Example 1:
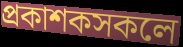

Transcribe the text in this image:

প্ৰকাশকসকলে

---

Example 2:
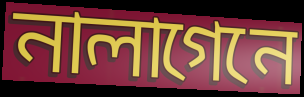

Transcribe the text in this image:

নালাগেনে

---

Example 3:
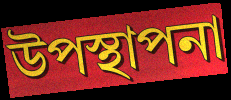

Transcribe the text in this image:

উপস্থাপনা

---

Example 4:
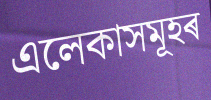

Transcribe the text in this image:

এলেকাসমূহৰ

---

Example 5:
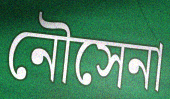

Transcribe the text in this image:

নৌসেনা